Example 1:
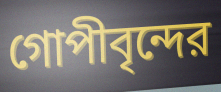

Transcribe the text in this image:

গোপীবৃন্দের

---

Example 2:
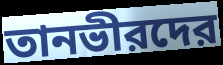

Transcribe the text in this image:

তানভীরদের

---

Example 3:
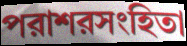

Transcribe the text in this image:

পরাশরসংহিতা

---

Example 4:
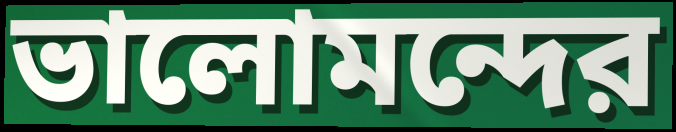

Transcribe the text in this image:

ভালোমন্দের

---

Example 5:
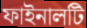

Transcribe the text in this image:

ফাইনালটি